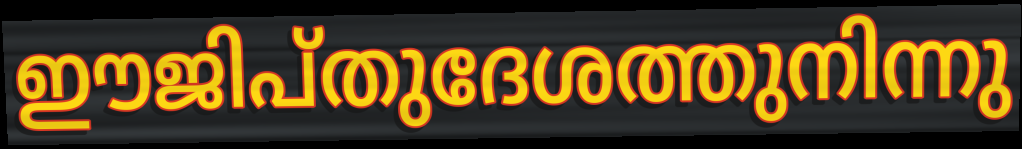
ഈജിപ്തുദേശത്തുനിന്നു